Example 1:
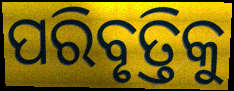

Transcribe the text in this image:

ପରିବୃତ୍ତିକୁ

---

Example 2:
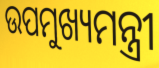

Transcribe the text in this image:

ଉପମୁଖ୍ୟମନ୍ତ୍ରୀ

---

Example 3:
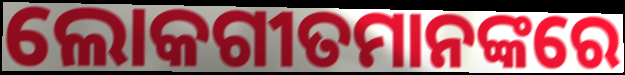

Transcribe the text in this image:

ଲୋକଗୀତମାନଙ୍କରେ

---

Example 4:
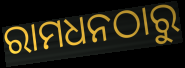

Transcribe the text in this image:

ରାମଧନଠାରୁ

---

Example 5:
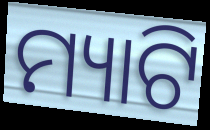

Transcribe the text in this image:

ମ୍ୟାଟି